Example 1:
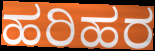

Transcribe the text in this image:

ಹರಿಹರ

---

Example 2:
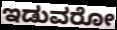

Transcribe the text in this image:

ಇಡುವರೋ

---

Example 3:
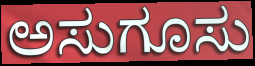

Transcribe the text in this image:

ಅಸುಗೂಸು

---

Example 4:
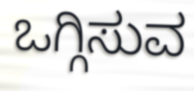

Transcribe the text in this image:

ಒಗ್ಗಿಸುವ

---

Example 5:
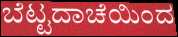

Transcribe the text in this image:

ಬೆಟ್ಟದಾಚೆಯಿಂದ